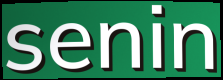
senin